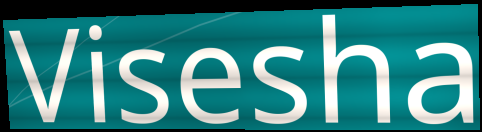
Visesha